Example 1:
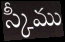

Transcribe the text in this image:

స్కీము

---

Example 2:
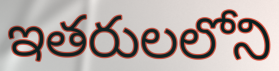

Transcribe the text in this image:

ఇతరులలోని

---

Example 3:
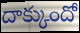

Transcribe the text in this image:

దాక్కుందో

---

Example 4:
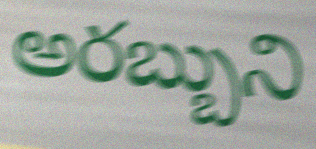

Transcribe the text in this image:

అరబ్బుని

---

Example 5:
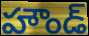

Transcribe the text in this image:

హౌండ్